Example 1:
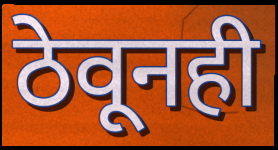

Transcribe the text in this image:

ठेवूनही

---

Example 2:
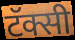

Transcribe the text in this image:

टॅक्सी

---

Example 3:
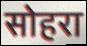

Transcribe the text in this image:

सोहरा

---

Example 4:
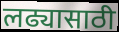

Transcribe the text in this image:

लढ्यासाठी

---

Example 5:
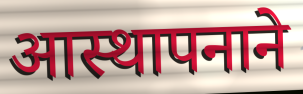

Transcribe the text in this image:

आस्थापनाने